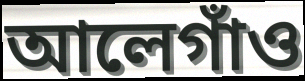
আলেগাঁও